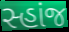
સ્હાંજ